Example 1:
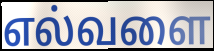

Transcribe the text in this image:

எல்வளை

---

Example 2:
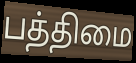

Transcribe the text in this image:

பத்திமை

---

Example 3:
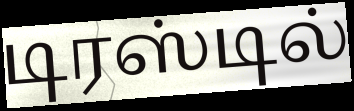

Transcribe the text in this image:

டிரஸ்டில்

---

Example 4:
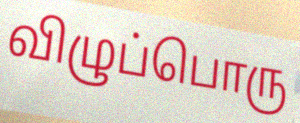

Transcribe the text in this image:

விழுப்பொரு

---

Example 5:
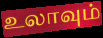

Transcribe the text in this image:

உலாவும்